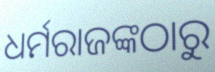
ଧର୍ମରାଜଙ୍କଠାରୁ